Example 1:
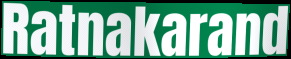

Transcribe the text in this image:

Ratnakarand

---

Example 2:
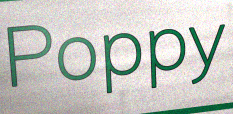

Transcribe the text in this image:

Poppy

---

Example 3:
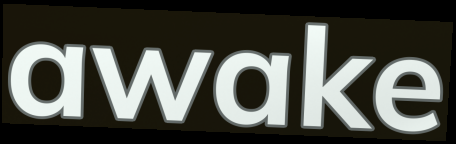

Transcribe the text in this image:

awake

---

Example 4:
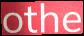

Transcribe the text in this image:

othe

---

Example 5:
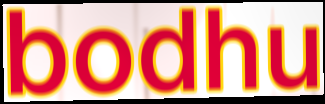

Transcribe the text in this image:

bodhu